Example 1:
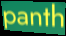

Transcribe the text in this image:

panth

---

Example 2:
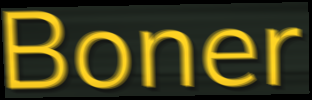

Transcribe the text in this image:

Boner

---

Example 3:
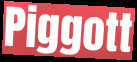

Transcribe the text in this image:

Piggott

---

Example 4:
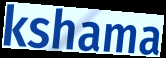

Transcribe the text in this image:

kshama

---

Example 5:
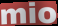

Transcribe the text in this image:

mio